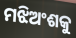
ମଝିଅଂଶକୁ